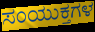
ಸಂಯುಕ್ತಗಳ